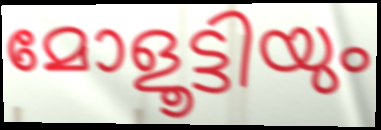
മോളൂട്ടിയും